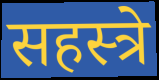
सहस्त्रे